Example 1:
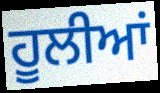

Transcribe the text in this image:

ਹੂਲੀਆਂ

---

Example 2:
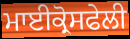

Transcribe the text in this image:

ਮਾਈਕ੍ਰੋਸਫੇਲੀ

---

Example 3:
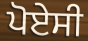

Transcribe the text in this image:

ਪੋਏਸੀ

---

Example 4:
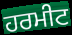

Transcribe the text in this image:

ਹਰਮੀਟ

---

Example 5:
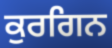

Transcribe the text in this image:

ਕੁਰਗਿਨ